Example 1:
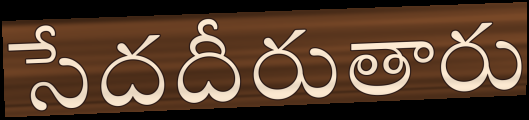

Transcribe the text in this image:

సేదదీరుతారు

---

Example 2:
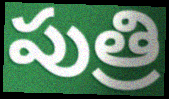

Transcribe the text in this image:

పుత్రి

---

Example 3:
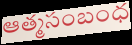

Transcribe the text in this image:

ఆత్మసంబంధ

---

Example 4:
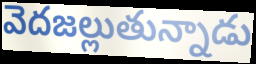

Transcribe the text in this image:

వెదజల్లుతున్నాడు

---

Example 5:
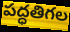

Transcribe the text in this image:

పద్ధతిగల